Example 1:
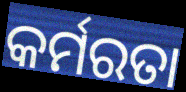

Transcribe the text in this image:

କର୍ମରତା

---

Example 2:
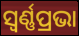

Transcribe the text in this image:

ସ୍ୱର୍ଣ୍ଣପ୍ରଭା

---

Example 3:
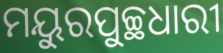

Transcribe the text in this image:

ମୟୁରପୁଚ୍ଛଧାରୀ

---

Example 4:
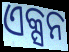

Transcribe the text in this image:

ଏକ୍ସନ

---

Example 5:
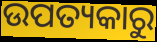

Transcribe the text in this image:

ଉପତ୍ୟକାରୁ